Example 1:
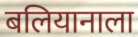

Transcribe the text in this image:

बलियानाला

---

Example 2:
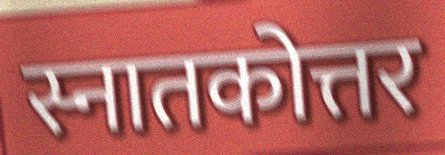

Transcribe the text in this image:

स्नातकोत्तर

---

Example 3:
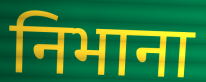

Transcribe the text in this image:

निभाना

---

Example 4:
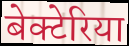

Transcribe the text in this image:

बेक्टेरिया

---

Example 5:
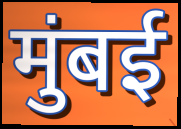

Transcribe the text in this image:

मुंबई